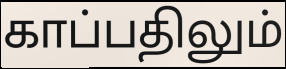
காப்பதிலும்